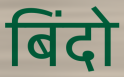
बिंदो